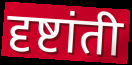
दृष्टांती